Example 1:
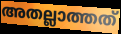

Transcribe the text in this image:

അതല്ലാത്തത്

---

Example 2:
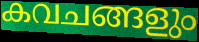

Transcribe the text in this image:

കവചങ്ങളും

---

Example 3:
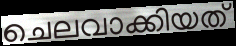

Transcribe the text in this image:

ചെലവാക്കിയത്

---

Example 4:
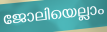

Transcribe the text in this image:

ജോലിയെല്ലാം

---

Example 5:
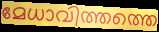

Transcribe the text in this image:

മേധാവിത്തത്തെ